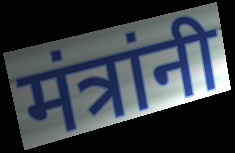
मंत्रांनी